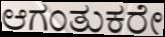
ಆಗಂತುಕರೇ